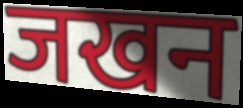
जखन